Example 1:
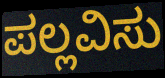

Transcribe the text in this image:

ಪಲ್ಲವಿಸು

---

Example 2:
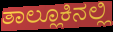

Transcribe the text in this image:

ತಾಲ್ಲೂಕಿನಲ್ಲಿ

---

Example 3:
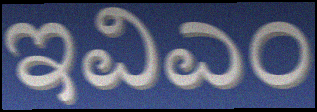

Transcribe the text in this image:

ಇವಿಎಂ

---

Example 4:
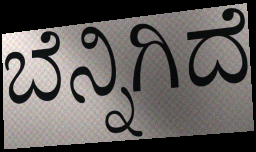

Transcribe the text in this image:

ಬೆನ್ನಿಗಿದೆ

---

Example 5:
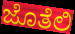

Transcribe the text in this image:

ಜೊತೆಲಿ